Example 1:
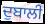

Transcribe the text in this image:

ਦੁਬਾਲੀ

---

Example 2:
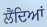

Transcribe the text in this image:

ਲੈਂਦਿਆਂ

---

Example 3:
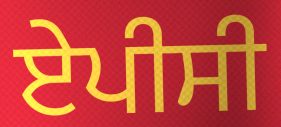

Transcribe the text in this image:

ਏਪੀਸੀ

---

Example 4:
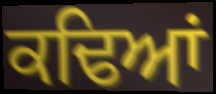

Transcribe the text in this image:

ਕਢਿਆਂ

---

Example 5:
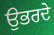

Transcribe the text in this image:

ਉਭਰਦੇ